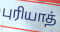
புரியாத்